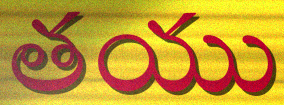
తయు